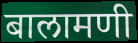
बालामणी